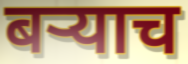
बर्‍याच